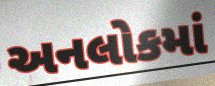
અનલોકમાં